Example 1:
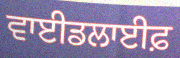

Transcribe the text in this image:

ਵਾਈਡਲਾਈਫ਼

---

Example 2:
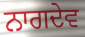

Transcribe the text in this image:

ਨਾਗਦੇਵ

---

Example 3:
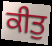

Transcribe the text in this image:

ਕੀਤੁ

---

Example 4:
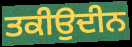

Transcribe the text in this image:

ਤਕੀਉਦੀਨ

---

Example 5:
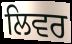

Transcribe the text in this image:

ਲਿਵਰ